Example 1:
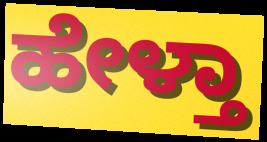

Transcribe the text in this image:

ಹೇಳ್ತಾ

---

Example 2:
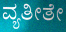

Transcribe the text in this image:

ವ್ಯತೀತೇ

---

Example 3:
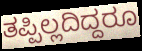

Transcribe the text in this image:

ತಪ್ಪಿಲ್ಲದಿದ್ದರೂ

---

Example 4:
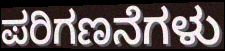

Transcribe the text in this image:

ಪರಿಗಣನೆಗಳು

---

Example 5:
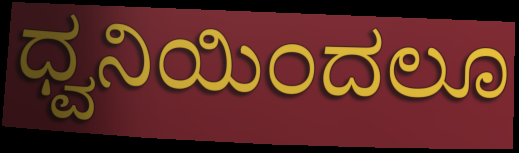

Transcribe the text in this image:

ಧ್ವನಿಯಿಂದಲೂ